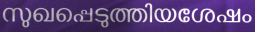
സുഖപ്പെടുത്തിയശേഷം